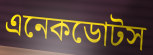
এনেকডোটস